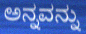
ಅನ್ನವನ್ನು